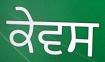
ਕੇਵਸ